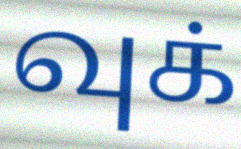
வுக்